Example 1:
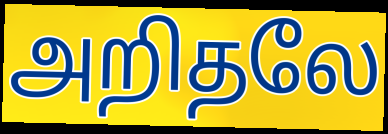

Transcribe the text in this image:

அறிதலே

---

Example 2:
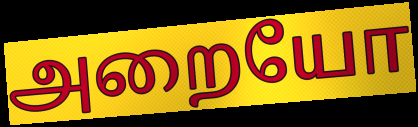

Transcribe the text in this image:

அறையோ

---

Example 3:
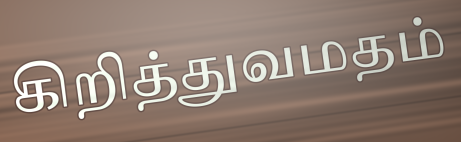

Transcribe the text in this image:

கிறித்துவமதம்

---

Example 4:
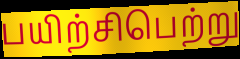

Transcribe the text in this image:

பயிற்சிபெற்று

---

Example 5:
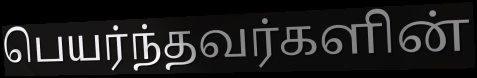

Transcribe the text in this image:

பெயர்ந்தவர்களின்